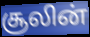
சூலின்